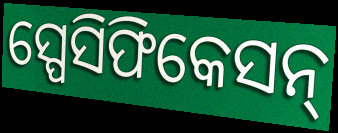
ସ୍ପେସିଫିକେସନ୍